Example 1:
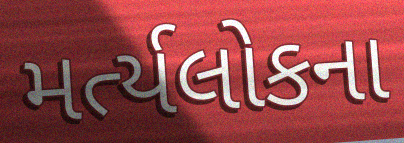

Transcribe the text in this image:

મર્ત્યલોકના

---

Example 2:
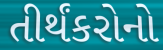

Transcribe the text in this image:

તીર્થંકરોનો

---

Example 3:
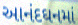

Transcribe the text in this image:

આનંદઘનમાં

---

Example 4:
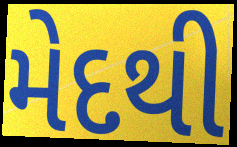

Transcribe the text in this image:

મેદથી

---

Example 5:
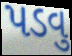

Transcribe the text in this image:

પડવુ